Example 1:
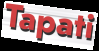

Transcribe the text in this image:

Tapati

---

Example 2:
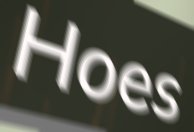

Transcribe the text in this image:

Hoes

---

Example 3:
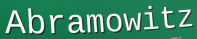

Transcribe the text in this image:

Abramowitz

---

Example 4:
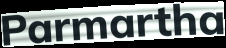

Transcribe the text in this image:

Parmartha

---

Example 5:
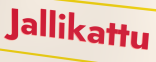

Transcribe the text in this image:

Jallikattu